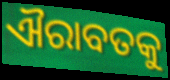
ଐରାବତକୁ